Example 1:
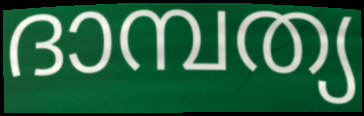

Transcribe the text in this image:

ദാമ്പത്യ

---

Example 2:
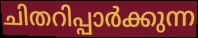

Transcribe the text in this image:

ചിതറിപ്പാർക്കുന്ന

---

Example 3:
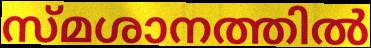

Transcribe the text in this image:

സ്മശാനത്തിൽ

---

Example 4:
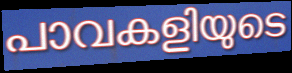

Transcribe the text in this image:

പാവകളിയുടെ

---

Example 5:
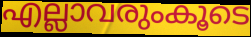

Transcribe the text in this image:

എല്ലാവരുംകൂടെ